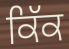
ਕਿੱਕ